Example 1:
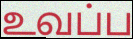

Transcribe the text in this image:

உவப்ப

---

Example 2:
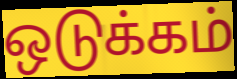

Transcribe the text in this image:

ஒடுக்கம்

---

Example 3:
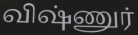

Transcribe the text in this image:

விஷ்ணுர்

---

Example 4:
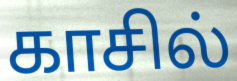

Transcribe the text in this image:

காசில்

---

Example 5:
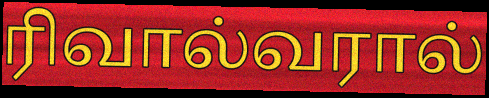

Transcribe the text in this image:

ரிவால்வரால்